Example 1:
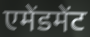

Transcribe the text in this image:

एमेंडमेंट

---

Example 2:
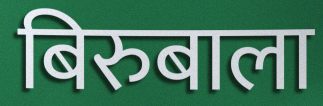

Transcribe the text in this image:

बिरुबाला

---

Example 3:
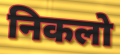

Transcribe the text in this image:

निकलो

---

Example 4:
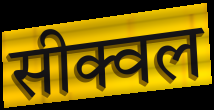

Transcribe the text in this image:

सीक्वल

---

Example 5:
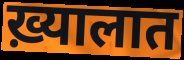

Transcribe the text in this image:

ख़्यालात